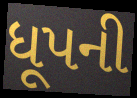
ધૂપની